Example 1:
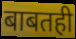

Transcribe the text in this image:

बाबतही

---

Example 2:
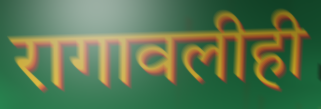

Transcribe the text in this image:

रागावलीही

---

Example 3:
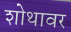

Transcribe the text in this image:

शोथावर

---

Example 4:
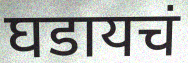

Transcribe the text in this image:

घडायचं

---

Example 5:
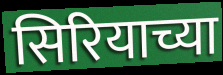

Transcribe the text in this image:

सिरियाच्या